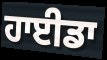
ਹਾਈਡਾ